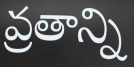
వ్రతాన్ని